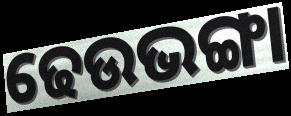
ଢେଉଭଙ୍ଗା